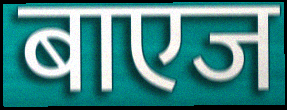
बाएज